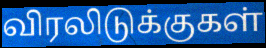
விரலிடுக்குகள்